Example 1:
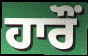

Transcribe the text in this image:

ਹਾਰੌਂ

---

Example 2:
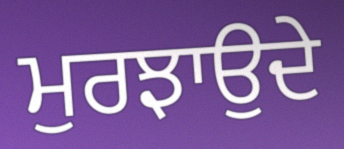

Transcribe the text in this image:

ਮੁਰਝਾਉਦੇ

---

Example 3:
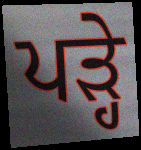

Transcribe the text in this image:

ਪਡ਼੍ਹੇ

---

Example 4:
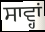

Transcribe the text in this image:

ਸਾਵ੍ਹਾਂ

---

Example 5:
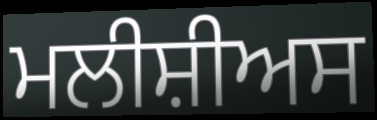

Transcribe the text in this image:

ਮਲੀਸ਼ੀਅਸ